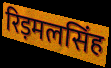
रिड़मलसिंह